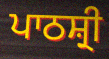
ਪਾਠਸ਼੍ਰੀ